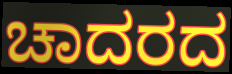
ಚಾದರದ